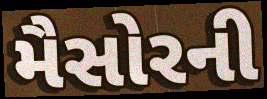
મૈસોરની